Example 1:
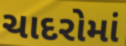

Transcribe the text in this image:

ચાદરોમાં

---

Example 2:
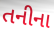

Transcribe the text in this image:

તનીના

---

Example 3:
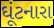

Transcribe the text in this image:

ઘૂંટનારા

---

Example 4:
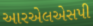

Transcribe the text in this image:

આરએલએસપી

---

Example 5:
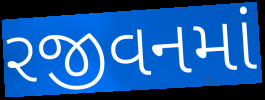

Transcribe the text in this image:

રજીવનમાં